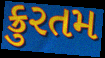
ક્રુરતમ